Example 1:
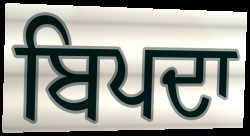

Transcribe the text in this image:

ਬਿਪਦਾ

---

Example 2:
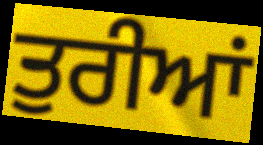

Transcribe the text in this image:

ਤੁਰੀਆਂ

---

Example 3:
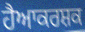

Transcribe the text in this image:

ਹੈਆਕਰਸ਼ਕ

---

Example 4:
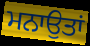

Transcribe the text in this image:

ਮਨਾਉਤਾਂ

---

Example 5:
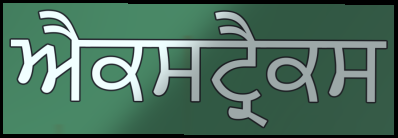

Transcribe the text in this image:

ਐਕਸਟ੍ਰੈਕਸ